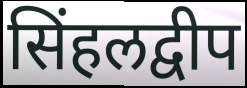
सिंहलद्वीप